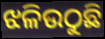
ଝଳିଉଠୁଛି